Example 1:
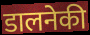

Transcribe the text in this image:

डालनेकी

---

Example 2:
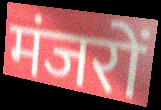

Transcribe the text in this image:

मंजरों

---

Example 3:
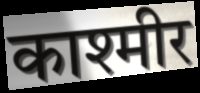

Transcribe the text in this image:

काश्मीर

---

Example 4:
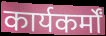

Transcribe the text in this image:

कार्यकर्मों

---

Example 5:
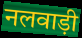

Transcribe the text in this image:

नलवाड़ी